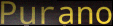
Purano